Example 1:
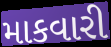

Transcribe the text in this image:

માકવારી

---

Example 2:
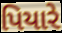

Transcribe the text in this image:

પિયારે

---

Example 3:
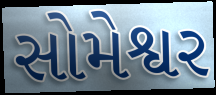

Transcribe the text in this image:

સોમેશ્વર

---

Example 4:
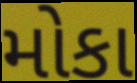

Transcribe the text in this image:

મોકા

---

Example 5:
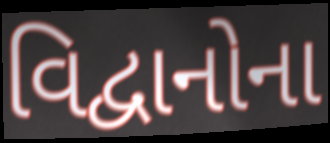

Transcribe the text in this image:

વિદ્વાનોના